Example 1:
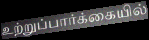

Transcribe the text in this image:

உற்றுப்பார்க்கையில்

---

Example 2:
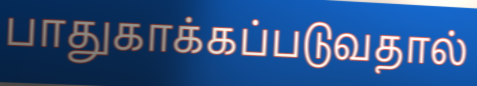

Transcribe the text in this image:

பாதுகாக்கப்படுவதால்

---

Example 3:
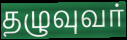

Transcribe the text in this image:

தழுவுவர்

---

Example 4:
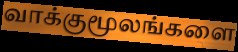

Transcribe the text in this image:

வாக்குமூலங்களை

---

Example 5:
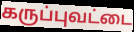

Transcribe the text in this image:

கருப்புவட்டை